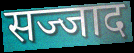
सज्‍जाद